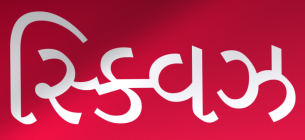
સ્ક્વિઝ